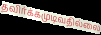
தவிர்க்கமுடிவதில்லை